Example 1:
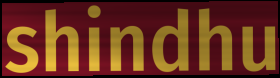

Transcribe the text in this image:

shindhu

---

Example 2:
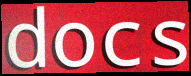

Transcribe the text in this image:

docs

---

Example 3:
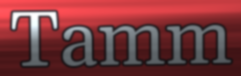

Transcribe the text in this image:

Tamm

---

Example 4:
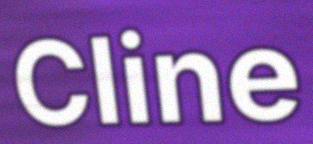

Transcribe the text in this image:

Cline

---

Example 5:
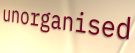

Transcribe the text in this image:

unorganised